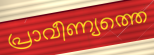
പ്രാവീണ്യത്തെ